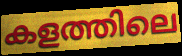
കളത്തിലെ